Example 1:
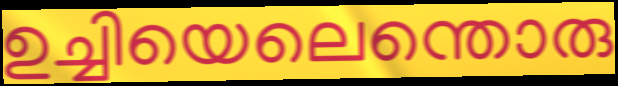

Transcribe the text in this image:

ഉച്ചിയെലെന്തൊരു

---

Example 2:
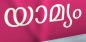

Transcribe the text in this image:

യാമ്യം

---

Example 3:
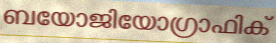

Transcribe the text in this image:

ബയോജിയോഗ്രാഫിക്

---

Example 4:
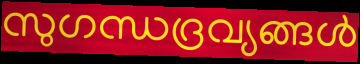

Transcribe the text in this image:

സുഗന്ധദ്രവ്യങ്ങൾ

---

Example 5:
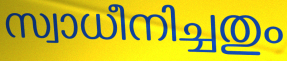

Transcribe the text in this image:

സ്വാധീനിച്ചതും